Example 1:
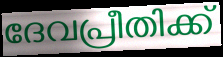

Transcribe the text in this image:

ദേവപ്രീതിക്ക്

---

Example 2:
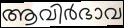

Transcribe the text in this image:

ആവിർഭാവ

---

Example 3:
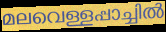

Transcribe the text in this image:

മലവെള്ളപ്പാച്ചിൽ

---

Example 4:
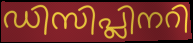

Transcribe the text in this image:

ഡിസിപ്ലിനറി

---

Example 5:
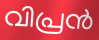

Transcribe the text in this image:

വിപ്രൻ